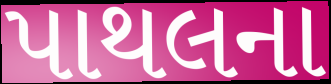
પાથલના